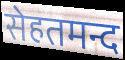
सेहतमन्द